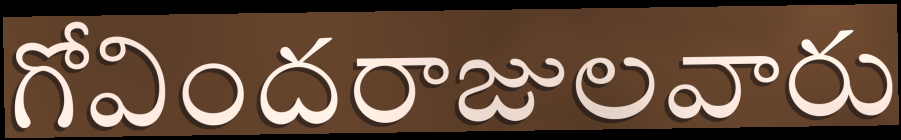
గోవిందరాజులవారు